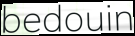
bedouin